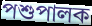
পশুপালক